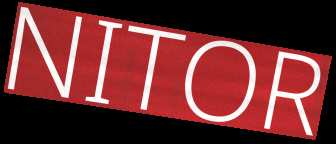
NITOR